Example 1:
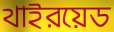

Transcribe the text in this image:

থাইরয়েড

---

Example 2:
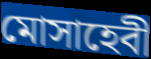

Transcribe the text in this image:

মোসাহেবী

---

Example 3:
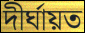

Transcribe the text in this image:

দীর্ঘায়ত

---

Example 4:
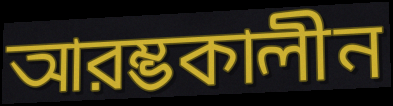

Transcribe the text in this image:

আরম্ভকালীন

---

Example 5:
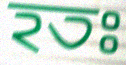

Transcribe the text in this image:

হতঃ